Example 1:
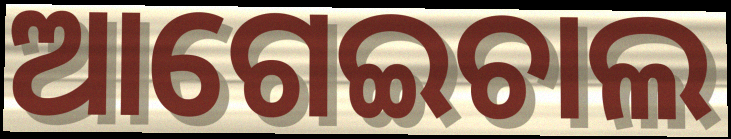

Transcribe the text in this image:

ଆଗେଇଚାଲ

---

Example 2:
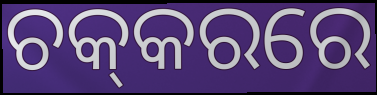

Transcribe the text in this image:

ଚକ୍‌କରରେ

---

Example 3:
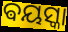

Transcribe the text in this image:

ଵୟସ୍କା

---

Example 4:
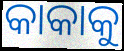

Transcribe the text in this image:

କାକାକୁ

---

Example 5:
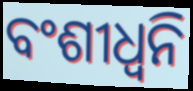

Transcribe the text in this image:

ବଂଶୀଧ୍ବନି